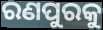
ରଣପୁରକୁ